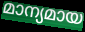
മാന്യമായ